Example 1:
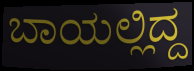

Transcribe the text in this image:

ಬಾಯಲ್ಲಿದ್ದ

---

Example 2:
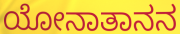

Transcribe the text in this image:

ಯೋನಾತಾನನ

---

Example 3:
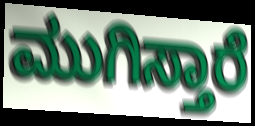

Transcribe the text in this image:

ಮುಗಿಸ್ತಾರೆ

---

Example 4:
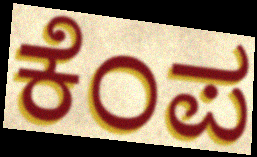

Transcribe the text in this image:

ಕೆಂಪ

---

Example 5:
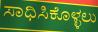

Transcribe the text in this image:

ಸಾಧಿಸಿಕೊಳ್ಳಲು